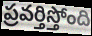
ప్రవర్తిస్తోంది